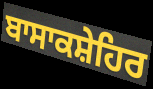
ਬਾਸਾਕਸ਼ੇਹਿਰ